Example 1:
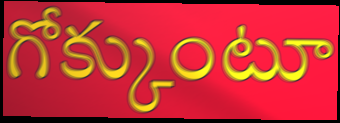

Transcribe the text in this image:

గోక్కుంటూ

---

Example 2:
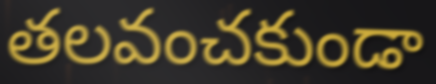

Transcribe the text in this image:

తలవంచకుండా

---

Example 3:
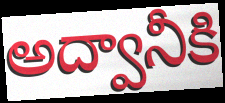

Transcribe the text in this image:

అద్వానీకి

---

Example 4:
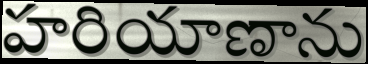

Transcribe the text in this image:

హరియాణాను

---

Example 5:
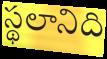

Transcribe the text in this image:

స్థలానిది